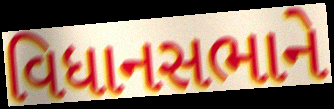
વિધાનસભાને